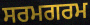
ਸਰਮਗਰਮ